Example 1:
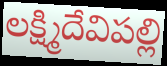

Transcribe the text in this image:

లక్ష్మిదేవిపల్లి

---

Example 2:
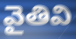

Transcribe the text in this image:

వైతివి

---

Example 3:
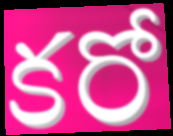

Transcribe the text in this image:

కరో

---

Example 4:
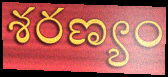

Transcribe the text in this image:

శరణ్యం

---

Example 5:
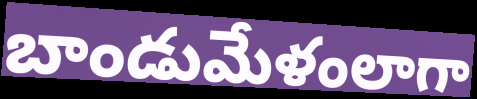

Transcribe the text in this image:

బాండుమేళంలాగా